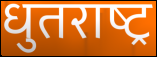
धुतराष्ट्र